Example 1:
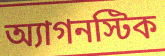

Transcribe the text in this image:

অ্যাগনস্টিক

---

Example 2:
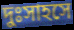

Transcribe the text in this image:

দুঃসাহসে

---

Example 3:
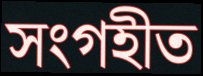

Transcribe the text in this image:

সংগহীত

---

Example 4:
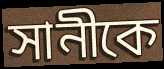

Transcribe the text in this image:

সানীকে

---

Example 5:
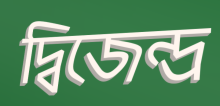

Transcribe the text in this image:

দ্বিজেন্দ্র